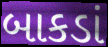
બાકડાં